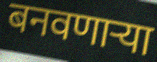
बनवणाऱ्या